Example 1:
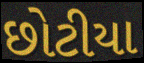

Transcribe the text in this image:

છોટીયા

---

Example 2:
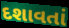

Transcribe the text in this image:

દશાવતાં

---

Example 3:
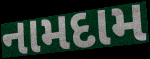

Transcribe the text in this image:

નામદામ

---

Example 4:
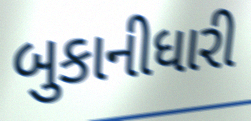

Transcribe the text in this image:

બુકાનીધારી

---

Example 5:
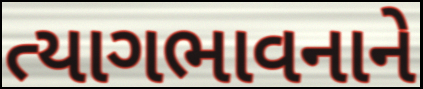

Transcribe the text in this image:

ત્યાગભાવનાને